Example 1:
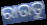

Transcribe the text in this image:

ରାଉତୁ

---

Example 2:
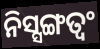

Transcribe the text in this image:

ନିସ୍ସଙ୍ଗତ୍ୱଂ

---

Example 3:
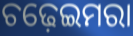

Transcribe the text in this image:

ଚଢ଼େଇମରା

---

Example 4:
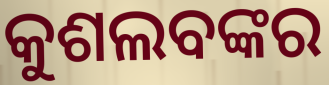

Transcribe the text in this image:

କୁଶଲବଙ୍କର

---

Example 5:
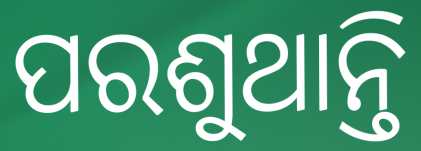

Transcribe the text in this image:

ପରଶୁଥାନ୍ତି